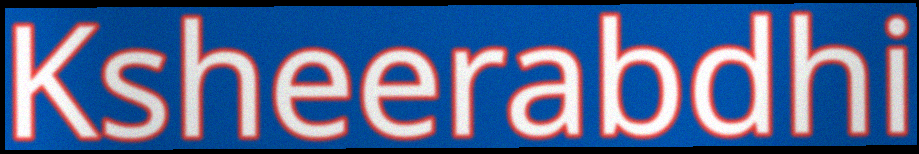
Ksheerabdhi